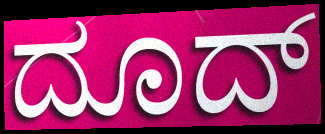
ದೂದ್